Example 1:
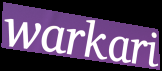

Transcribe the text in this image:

warkari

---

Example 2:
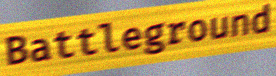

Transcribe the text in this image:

Battleground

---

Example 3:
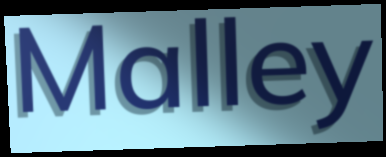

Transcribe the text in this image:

Malley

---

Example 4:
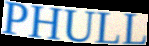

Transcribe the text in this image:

PHULL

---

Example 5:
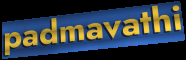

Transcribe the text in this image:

padmavathi